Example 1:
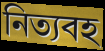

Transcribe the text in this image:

নিত্যবহ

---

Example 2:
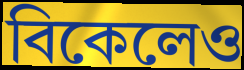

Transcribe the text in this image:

বিকেলেও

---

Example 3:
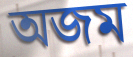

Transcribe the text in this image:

অজম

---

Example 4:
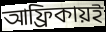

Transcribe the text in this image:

আফ্রিকায়ই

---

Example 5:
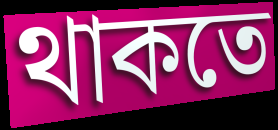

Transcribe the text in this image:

থাকতে